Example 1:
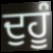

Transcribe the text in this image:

ਦੁਹੂੰ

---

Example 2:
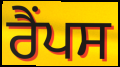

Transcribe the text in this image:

ਰੈਂਪਸ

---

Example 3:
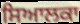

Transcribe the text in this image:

ਸਿਆਲਕਾ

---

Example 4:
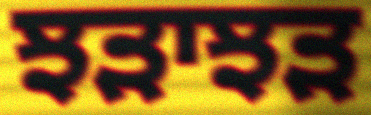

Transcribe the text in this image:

ਝੜਾਝੜ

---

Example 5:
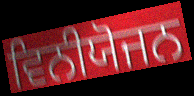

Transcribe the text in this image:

ਵਿਨੀਯੋਜਨ